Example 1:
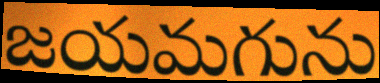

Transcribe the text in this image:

జయమగును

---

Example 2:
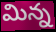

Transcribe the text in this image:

మిన్న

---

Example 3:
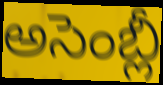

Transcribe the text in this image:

అసెంబ్లీ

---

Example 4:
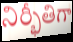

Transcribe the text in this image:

నిర్భీతిగా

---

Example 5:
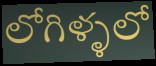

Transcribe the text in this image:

లోగిళ్ళలో